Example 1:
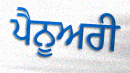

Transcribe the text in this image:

ਪੈਨੂਅਰੀ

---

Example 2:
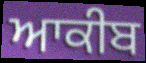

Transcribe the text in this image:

ਆਕੀਬ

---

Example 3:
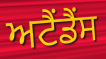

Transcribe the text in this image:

ਅਟੈਂਡੈਂਸ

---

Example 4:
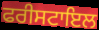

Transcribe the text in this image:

ਫਰੀਸਟਾਇਲ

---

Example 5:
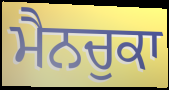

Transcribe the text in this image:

ਮੈਨਚੁਕਾ